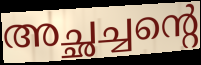
അച്ഛച്ചന്റെ